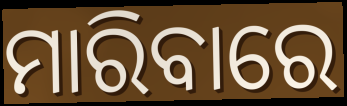
ମାରିବାରେ